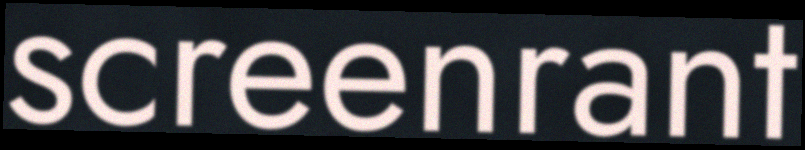
screenrant